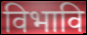
विभावि